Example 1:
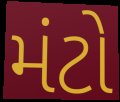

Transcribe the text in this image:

મંટો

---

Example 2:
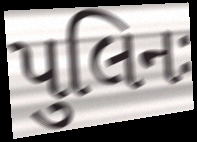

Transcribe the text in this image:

પુલિનઃ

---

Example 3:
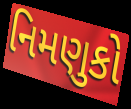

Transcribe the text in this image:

નિમણુકો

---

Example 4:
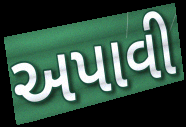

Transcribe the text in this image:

અપાવી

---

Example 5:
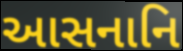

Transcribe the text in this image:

આસનાનિ